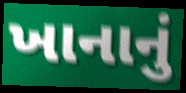
ખાનાનું